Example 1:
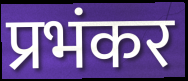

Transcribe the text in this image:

प्रभंकर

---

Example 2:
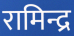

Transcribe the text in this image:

रामिन्द्र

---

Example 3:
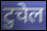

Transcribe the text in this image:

टुचेल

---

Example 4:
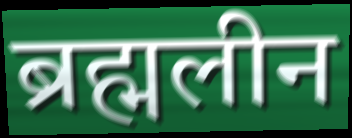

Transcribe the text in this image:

ब्रह्मलीन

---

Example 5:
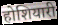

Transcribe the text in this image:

होशियारी